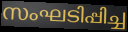
സംഘടിപ്പിച്ച